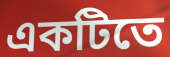
একটিতে